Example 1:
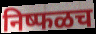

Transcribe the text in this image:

निष्फळच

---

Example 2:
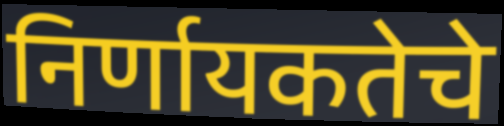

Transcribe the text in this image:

निर्णायकतेचे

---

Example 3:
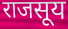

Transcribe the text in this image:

राजसूय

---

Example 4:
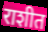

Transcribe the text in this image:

राशीत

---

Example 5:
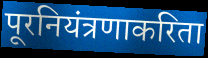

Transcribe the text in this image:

पूरनियंत्रणाकरिता